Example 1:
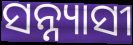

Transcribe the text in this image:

ସନ୍ନ୍ୟାସୀ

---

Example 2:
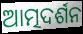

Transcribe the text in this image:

ଆତ୍ମଦର୍ଶନ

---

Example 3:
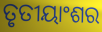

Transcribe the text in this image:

ତୃତୀୟାଂଶର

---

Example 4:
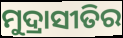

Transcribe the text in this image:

ମୁଦ୍ରାସୀତିର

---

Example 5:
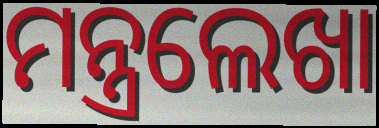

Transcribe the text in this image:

ମନ୍ତ୍ରଲେଖା